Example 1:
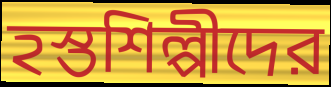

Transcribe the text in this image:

হস্তশিল্পীদের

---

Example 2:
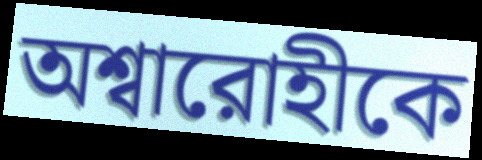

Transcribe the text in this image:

অশ্বারোহীকে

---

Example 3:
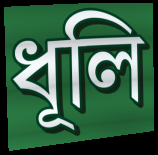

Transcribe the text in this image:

ধূলি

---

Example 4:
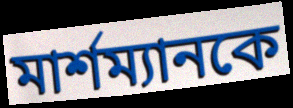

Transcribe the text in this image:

মার্শম্যানকে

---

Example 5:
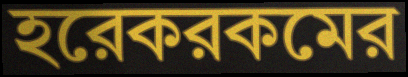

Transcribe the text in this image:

হরেকরকমের